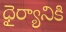
ధైర్యానికి